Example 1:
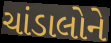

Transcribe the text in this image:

ચાંડાલોને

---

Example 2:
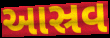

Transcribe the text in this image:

આસ્રવ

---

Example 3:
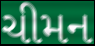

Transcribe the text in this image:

ચીમન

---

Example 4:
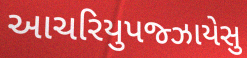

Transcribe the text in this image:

આચરિયુપજ્ઝાયેસુ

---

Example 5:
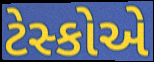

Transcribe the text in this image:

ટેસ્કોએ